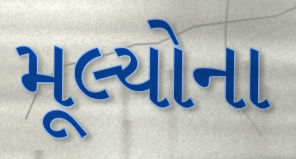
મૂલ્‍યોના